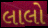
લાલો